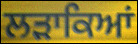
ਲੜਾਕਿਆਂ